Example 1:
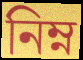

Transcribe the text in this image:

নিম্ন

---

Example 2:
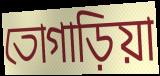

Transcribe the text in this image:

তোগাড়িয়া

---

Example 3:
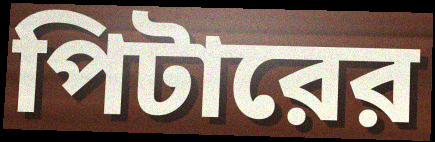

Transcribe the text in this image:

পিটারের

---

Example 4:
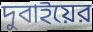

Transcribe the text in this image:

দুবাইয়ের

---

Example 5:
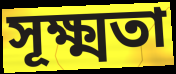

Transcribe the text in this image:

সূক্ষ্মতা